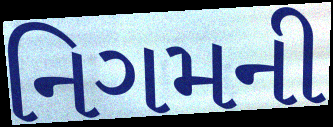
નિગમની